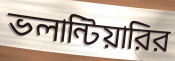
ভলান্টিয়ারির